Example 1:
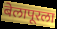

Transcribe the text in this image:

बेलापूरला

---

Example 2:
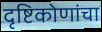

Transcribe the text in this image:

दृष्टिकोणांचा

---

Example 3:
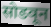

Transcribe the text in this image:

सोडवून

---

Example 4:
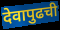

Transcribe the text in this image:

देवापुढची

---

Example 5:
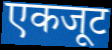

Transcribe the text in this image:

एकजूट